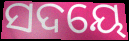
ସଦୟେ